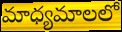
మాధ్యమాలలో